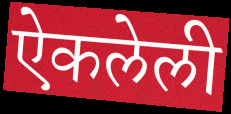
ऐकलेली